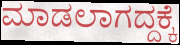
ಮಾಡಲಾಗದ್ದಕ್ಕೆ